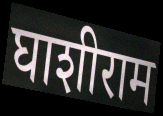
घाशीराम